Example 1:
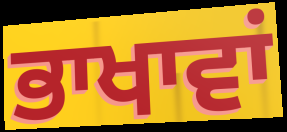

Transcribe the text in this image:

ਭਾਖਾਵਾਂ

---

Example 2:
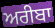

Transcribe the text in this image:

ਅਰੀਬਾ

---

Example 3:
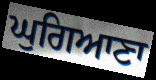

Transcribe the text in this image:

ਘੁਗਿਆਣਾ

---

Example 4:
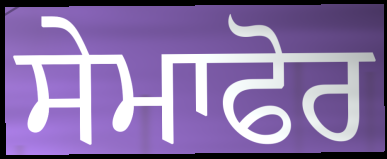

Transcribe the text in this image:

ਸੇਮਾਫੋਰ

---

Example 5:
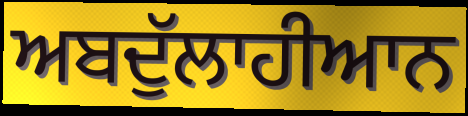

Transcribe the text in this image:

ਅਬਦੁੱਲਾਹੀਆਨ